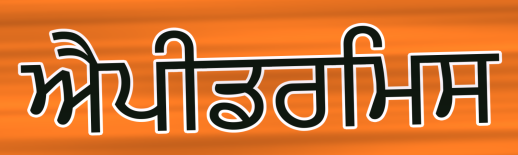
ਐਪੀਡਰਮਿਸ